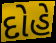
દોહે